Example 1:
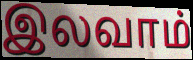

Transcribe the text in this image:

இலவாம்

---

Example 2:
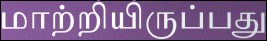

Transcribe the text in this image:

மாற்றியிருப்பது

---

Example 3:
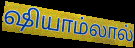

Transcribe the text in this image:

ஷியாம்லால்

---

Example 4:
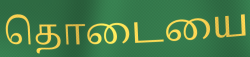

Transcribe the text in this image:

தொடையை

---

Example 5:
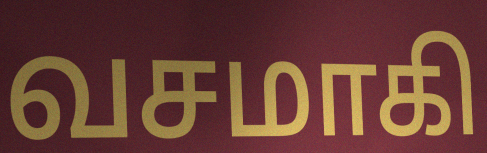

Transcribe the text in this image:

வசமாகி